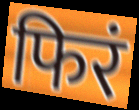
फिरं